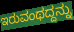
ಇರುವಂಥದ್ದನ್ನು